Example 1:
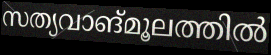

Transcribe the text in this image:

സത്യവാങ്മൂലത്തിൽ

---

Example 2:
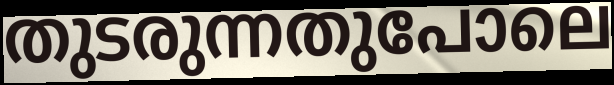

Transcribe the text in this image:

തുടരുന്നതുപോലെ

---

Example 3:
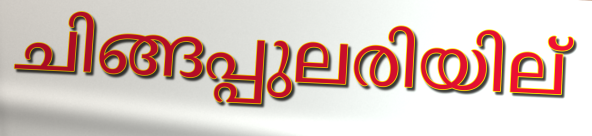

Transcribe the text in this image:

ചിങ്ങപ്പുലരിയില്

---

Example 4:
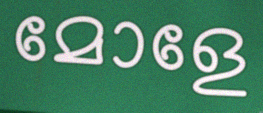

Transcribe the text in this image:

മോളേ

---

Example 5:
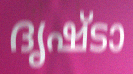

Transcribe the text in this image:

ദൃഷ്ടാ